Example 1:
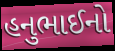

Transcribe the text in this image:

હનુભાઈનો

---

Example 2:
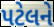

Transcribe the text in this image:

પટેલને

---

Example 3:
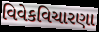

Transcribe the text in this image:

વિવેકવિચારણા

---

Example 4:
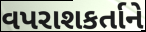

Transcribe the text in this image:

વપરાશકર્તાને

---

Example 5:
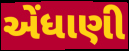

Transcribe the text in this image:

એંધાણી